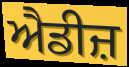
ਐਡੀਜ਼